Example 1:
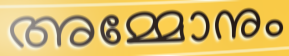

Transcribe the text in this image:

അമ്മോനും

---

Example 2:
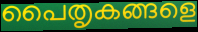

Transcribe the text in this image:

പൈതൃകങ്ങളെ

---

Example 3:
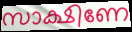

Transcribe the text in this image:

സാക്ഷിണേ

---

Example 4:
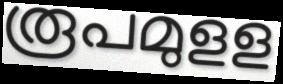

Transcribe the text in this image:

രൂപമുളള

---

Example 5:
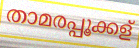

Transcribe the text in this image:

താമരപ്പൂക്കള്